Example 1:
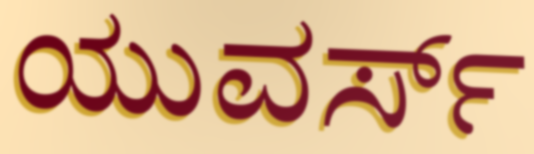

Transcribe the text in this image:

ಯುವರ್ಸ್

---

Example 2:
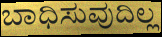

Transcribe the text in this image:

ಬಾಧಿಸುವುದಿಲ್ಲ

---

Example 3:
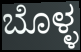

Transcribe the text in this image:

ಬೊಳ್ಳ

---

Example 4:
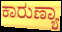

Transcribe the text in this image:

ಕಾರುಣ್ಯಾ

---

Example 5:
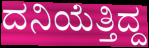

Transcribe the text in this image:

ದನಿಯೆತ್ತಿದ್ದ